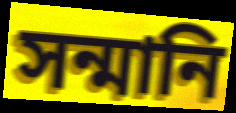
সন্মানি